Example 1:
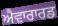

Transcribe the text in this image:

ਐਵਾਰਾਰਡ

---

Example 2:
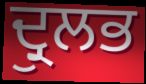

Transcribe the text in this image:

ਦ੍ਰੁਲਭ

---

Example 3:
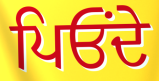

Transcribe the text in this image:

ਪਿਓਂਦੇ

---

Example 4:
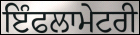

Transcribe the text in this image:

ਇੰਫਲਾਮੇਟਰੀ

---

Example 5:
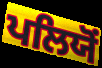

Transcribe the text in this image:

ਪਲਿਯੋਂ